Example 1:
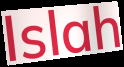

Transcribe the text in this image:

Islah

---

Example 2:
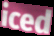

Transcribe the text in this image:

iced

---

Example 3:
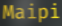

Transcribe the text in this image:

Maipi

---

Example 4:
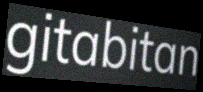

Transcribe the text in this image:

gitabitan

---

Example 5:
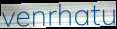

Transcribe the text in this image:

venrhatu